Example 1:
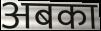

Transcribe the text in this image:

अबका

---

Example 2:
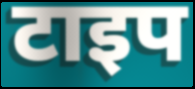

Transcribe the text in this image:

टाइप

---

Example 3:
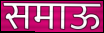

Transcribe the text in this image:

समाऊ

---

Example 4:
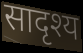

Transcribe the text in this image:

सादृश्य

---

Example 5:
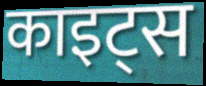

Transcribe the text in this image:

काइट्स